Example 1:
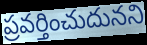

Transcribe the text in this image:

ప్రవర్తించుదునని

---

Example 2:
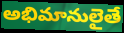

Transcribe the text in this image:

అభిమానులైతే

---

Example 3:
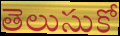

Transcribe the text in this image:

తెలుసుకో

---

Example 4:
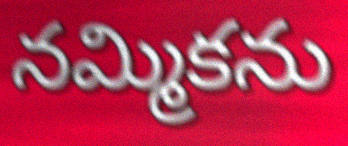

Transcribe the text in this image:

నమ్మికను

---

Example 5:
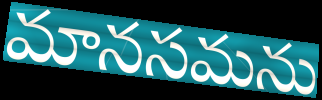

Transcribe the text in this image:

మానసమను